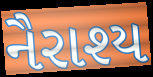
નૈરાશ્ય